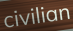
civilian